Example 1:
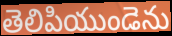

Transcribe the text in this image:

తెలిపియుండెను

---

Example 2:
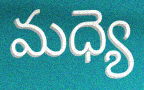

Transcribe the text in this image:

మధ్యె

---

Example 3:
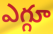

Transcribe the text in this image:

ఎగ్గూ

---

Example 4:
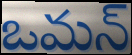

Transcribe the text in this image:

ఒమన్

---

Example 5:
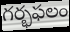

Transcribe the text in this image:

గర్భఫలం